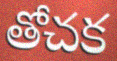
తోచక